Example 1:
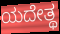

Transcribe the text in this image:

ಯದೇತ್ಥ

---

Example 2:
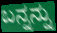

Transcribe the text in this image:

ಬನ್ನನ್ನು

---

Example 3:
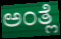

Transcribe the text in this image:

ಅಂತ್ಲೆ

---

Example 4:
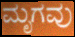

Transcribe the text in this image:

ಮೃಗವು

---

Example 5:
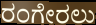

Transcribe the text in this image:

ರಂಗೇರಲು